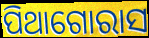
ପିଥାଗୋରାସ